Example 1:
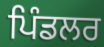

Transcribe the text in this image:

ਪਿੰਡਲਰ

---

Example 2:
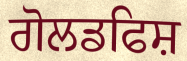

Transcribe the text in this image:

ਗੋਲਡਫਿਸ਼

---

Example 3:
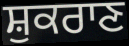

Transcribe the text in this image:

ਸ਼ੁਕਰਾਣ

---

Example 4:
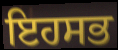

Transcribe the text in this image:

ਇਹਸਭ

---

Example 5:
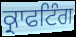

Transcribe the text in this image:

ਕ੍ਰਾਫਟਿੰਗ